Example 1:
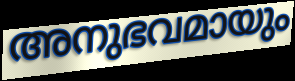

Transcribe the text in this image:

അനുഭവമായും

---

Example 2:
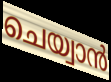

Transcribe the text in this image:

ചെയ്വാൻ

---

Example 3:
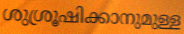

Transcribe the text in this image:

ശുശ്രൂഷിക്കാനുമുള്ള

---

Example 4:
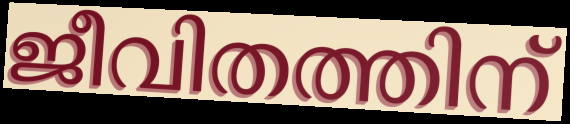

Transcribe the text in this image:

ജീവിതത്തിന്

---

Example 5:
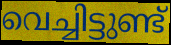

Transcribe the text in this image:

വെച്ചിട്ടുണ്ട്